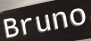
Bruno